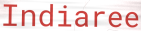
Indiaree